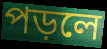
পড়লে